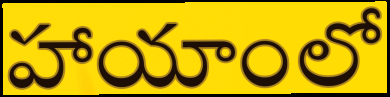
హాయాంలో